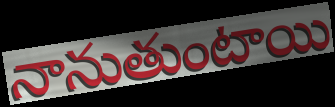
నానుతుంటాయి